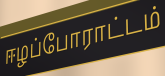
ஈழப்போராட்டம்